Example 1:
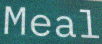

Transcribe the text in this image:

Meal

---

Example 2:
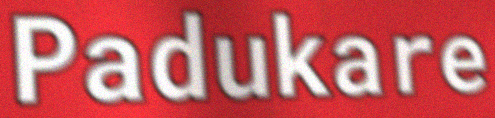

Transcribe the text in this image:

Padukare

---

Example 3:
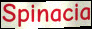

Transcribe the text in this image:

Spinacia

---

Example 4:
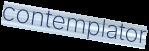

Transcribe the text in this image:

contemplator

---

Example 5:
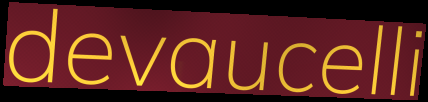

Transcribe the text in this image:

devaucelli